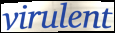
virulent